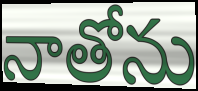
నాతోను